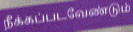
நீக்கப்படவேண்டும்